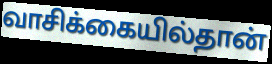
வாசிக்கையில்தான்